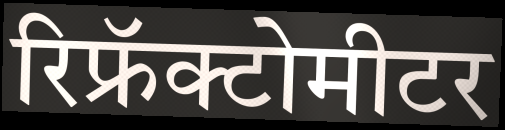
रिफ्रॅक्टोमीटर